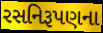
રસનિરૂપણના